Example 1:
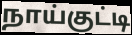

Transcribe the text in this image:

நாய்குட்டி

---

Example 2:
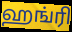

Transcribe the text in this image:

ஹங்ரி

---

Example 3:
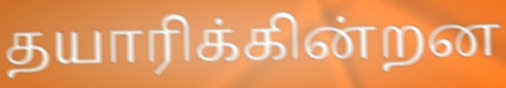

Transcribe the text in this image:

தயாரிக்கின்றன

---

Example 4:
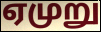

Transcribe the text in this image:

ஏமுறு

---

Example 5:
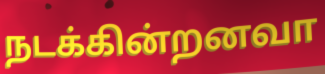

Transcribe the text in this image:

நடக்கின்றனவா